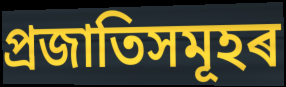
প্ৰজাতিসমূহৰ